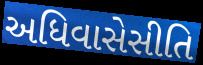
અધિવાસેસીતિ